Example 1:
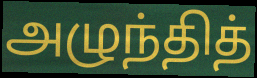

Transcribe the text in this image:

அழுந்தித்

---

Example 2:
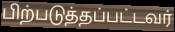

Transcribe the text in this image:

பிற்படுத்தப்பட்டவர்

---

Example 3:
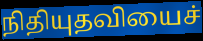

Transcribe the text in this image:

நிதியுதவியைச்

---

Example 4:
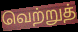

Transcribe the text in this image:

வெற்றுத்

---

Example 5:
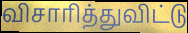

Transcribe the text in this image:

விசாரித்துவிட்டு